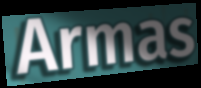
Armas